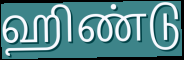
ஹிண்டு